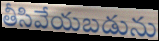
తీసివేయబడును